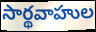
సార్థవాహుల